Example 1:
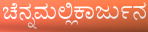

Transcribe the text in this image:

ಚೆನ್ನಮಲ್ಲಿಕಾರ್ಜುನ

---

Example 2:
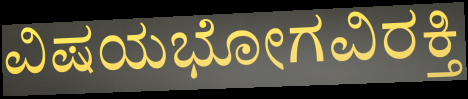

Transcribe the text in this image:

ವಿಷಯಭೋಗವಿರಕ್ತಿ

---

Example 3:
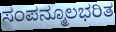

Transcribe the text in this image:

ಸಂಪನ್ಮೂಲಭರಿತ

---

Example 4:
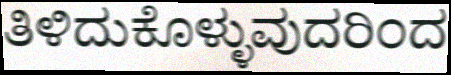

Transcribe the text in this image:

ತಿಳಿದುಕೊಳ್ಳುವುದರಿಂದ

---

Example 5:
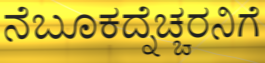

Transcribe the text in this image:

ನೆಬೂಕದ್ನೆಚ್ಚರನಿಗೆ